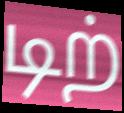
டிற்